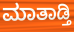
ಮಾತಾಡ್ತಿ